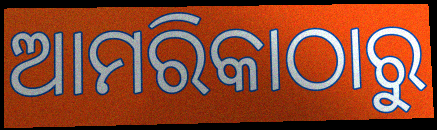
ଆମରିକାଠାରୁ